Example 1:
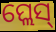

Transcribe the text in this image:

ପ୍ଲେସ୍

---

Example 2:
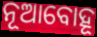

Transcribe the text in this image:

ନୂଆବୋହୂ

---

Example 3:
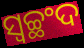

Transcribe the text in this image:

ସ୍ୱଚ୍ଛଂଦ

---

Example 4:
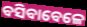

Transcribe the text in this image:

ବସିବାବେଳେ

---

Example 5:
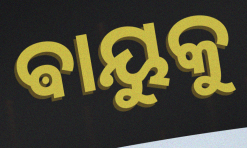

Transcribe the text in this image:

ଵାୟୁକୁ